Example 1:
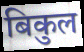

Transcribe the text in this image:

बिकुल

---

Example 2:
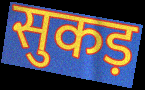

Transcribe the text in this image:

सुकड़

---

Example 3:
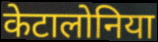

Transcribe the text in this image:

केटालोनिया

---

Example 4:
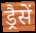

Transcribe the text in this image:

ड्रैसें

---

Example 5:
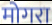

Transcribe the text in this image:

मोगरा